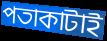
পতাকাটাই